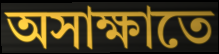
অসাক্ষাতে